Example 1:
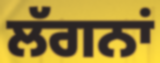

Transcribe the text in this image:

ਲੱਗਨਾਂ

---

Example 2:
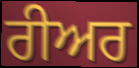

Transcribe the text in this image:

ਰੀਅਰ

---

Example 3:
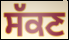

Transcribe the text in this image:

ਸੱਕਣ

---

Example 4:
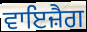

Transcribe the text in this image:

ਵਾਇਜ਼ੈਗ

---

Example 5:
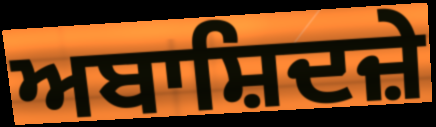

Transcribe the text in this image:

ਅਬਾਸ਼ਿਦਜ਼ੇ